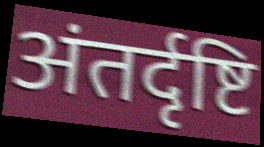
अंतर्दृष्टि